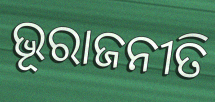
ଭୂରାଜନୀତି